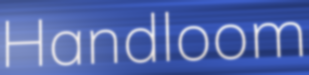
Handloom